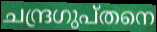
ചന്ദ്രഗുപ്തനെ